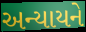
અન્યાયને